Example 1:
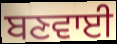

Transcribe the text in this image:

ਬਣਵਾਈ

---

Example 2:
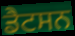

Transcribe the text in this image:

ਡੈਟਸਨ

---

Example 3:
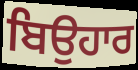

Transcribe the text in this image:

ਬਿਉਹਾਰ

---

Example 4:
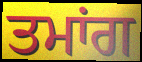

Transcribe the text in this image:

ਤਮਾਂਗ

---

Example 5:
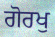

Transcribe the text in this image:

ਗੋਰਖੁ